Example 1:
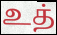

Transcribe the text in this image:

உத்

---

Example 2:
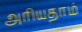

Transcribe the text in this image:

அரியதாம்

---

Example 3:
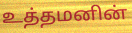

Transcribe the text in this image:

உத்தமனின்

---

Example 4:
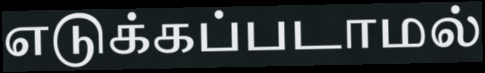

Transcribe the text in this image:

எடுக்கப்படாமல்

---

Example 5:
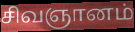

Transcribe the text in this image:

சிவஞானம்